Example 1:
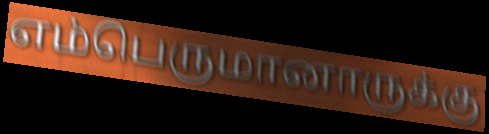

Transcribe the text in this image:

எம்பெருமானாருக்கு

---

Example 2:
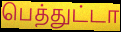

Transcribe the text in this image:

பெத்துட்டா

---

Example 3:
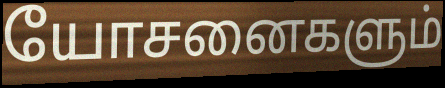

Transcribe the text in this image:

யோசனைகளும்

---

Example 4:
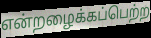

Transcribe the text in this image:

என்றழைக்கப்பெற்ற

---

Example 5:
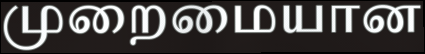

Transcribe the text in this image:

முறைமையான